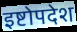
इष्टोपदेश